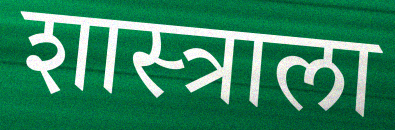
शास्त्राला